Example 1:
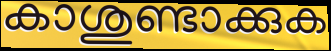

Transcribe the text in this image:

കാശുണ്ടാക്കുക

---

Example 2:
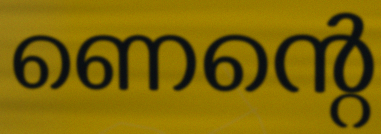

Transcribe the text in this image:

ണെന്റെ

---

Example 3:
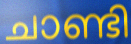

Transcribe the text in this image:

ചാണ്ടി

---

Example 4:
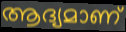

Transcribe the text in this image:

ആദ്യമാണ്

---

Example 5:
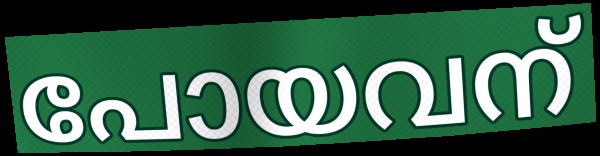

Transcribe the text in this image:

പോയവന്